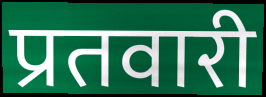
प्रतवारी